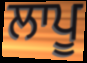
ਲਾਪੂ